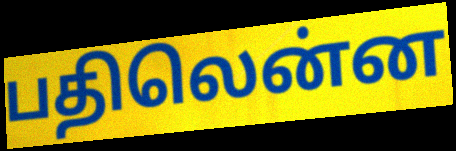
பதிலென்ன